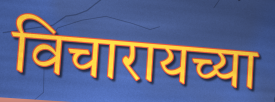
विचारायच्या